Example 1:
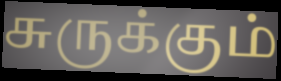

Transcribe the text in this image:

சுருக்கும்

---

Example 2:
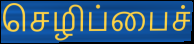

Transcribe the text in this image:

செழிப்பைச்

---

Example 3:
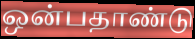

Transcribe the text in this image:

ஒன்பதாண்டு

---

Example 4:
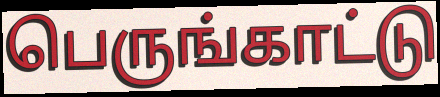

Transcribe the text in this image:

பெருங்காட்டு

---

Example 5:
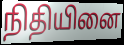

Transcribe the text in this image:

நிதியினை